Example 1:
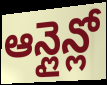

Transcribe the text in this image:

ఆన్లైన్లో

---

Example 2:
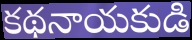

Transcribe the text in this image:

కథనాయకుడి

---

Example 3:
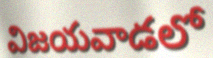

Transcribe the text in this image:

విజయవాడలో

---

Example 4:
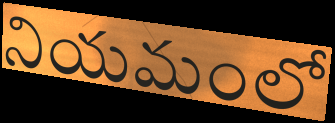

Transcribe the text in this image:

నియమంలో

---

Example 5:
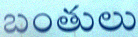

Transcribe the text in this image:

బంతులు